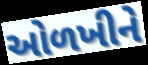
ઓળખીને